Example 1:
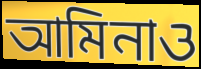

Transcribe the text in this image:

আমিনাও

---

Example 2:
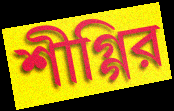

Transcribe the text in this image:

শীগ্গির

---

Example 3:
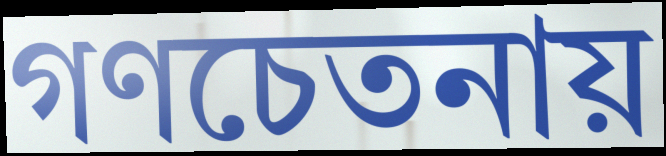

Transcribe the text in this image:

গণচেতনায়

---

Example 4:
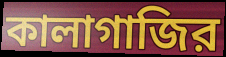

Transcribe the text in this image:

কালাগাজির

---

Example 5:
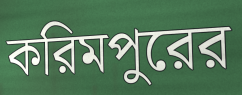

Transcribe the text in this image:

করিমপুরের